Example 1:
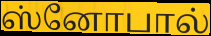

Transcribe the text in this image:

ஸ்னோபால்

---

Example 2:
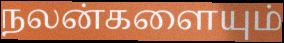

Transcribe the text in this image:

நலன்களையும்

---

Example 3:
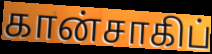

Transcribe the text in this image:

கான்சாகிப்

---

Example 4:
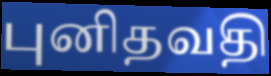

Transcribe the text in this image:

புனிதவதி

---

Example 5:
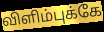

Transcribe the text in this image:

விளிம்புக்கே